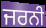
ਜਰਨੀ